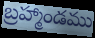
బ్రహ్మాండము